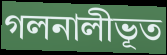
গলনালীভূত